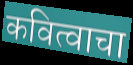
कवित्वाचा